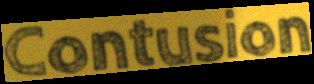
Contusion